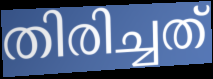
തിരിച്ചത്